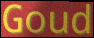
Goud